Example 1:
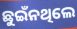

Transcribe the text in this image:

ଛୁଇଁନଥିଲେ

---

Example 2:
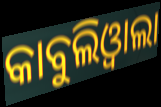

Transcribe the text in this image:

କାବୁଲିଓ୍ୱାଲା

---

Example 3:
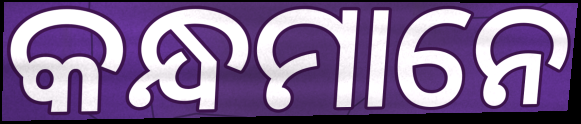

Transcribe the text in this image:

କନ୍ଧମାନେ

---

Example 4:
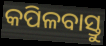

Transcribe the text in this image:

କପିଳବାସ୍ତୁ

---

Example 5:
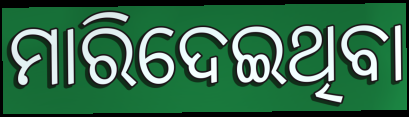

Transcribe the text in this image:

ମାରିଦେଇଥିବା